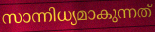
സാന്നിധ്യമാകുന്നത്